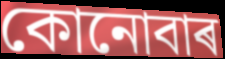
কোনোবাৰ